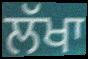
ਲੱਖਾ